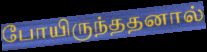
போயிருந்ததனால்